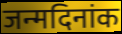
जन्मदिनांक